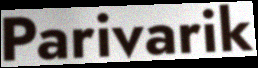
Parivarik